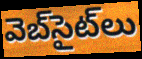
వెబ్‌సైట్‌లు